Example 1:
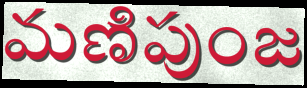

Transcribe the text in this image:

మణిపుంజ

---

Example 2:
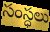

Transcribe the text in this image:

సంస్ధలు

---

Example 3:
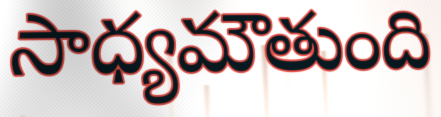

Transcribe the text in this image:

సాధ్యమౌతుంది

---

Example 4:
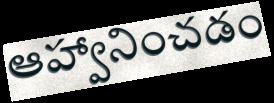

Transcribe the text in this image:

ఆహ్వానించడం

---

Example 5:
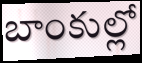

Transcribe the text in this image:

బాంకుల్లో